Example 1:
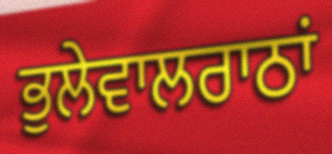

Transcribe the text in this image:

ਭੁਲੇਵਾਲਰਾਠਾਂ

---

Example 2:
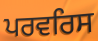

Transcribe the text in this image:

ਪਰਵਰਿਸ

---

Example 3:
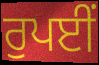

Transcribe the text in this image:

ਰੁਪਈਂ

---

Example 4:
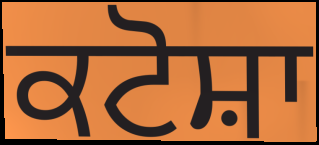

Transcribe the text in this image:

ਕਟੋਸ਼ਾ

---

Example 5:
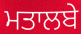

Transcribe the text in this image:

ਮਤਾਲਬੇ